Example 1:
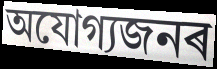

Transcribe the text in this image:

অযোগ্যজনৰ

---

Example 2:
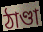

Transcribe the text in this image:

ঠাণ্ডা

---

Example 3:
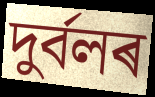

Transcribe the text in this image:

দুৰ্বলৰ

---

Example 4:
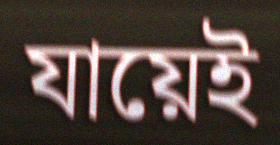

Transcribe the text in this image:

যায়েই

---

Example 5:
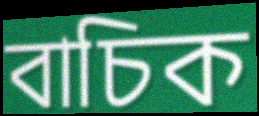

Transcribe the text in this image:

বাচিক